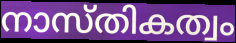
നാസ്തികത്വം